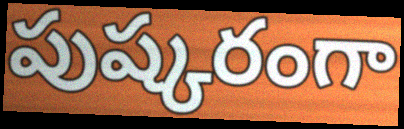
పుష్కరంగా